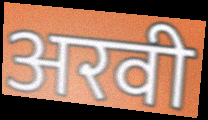
अरवी